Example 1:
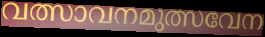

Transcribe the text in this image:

വത്സാവനമുത്സവേന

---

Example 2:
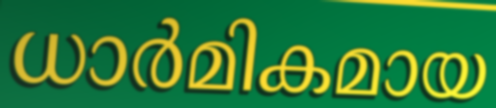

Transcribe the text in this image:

ധാർമികമായ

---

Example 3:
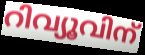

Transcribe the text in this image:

റിവ്യൂവിന്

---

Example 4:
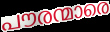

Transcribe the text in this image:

പൗരന്മാരെ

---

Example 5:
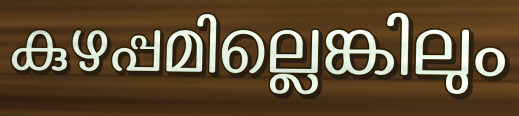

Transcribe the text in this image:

കുഴപ്പമില്ലെങ്കിലും